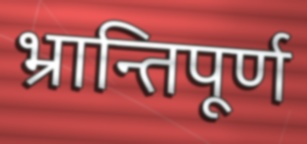
भ्रान्तिपूर्ण